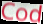
Cod